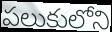
పలుకులోని